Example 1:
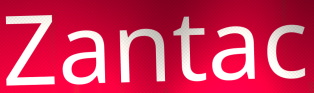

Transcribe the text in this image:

Zantac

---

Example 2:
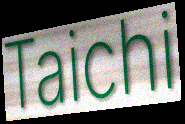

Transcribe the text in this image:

Taichi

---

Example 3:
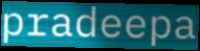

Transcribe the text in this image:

pradeepa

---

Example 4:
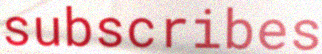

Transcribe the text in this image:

subscribes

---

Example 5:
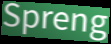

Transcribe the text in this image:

Spreng